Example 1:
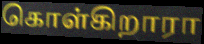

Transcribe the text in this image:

கொள்கிறாரா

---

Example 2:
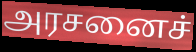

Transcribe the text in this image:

அரசனைச்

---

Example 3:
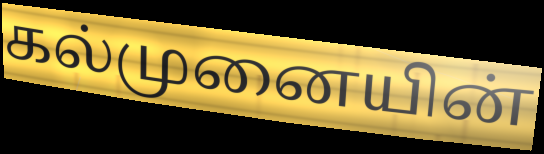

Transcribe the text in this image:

கல்முனையின்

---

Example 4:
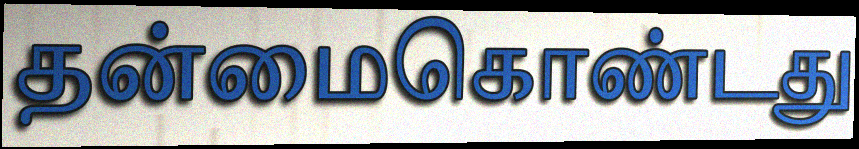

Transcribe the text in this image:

தன்மைகொண்டது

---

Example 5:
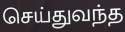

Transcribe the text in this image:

செய்துவந்த